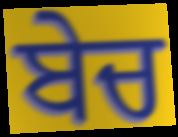
ਬੇਚ